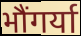
भौंगर्या